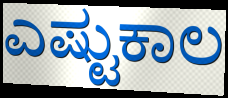
ಎಷ್ಟುಕಾಲ